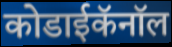
कोडाईकॅनॉल